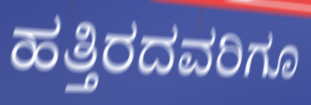
ಹತ್ತಿರದವರಿಗೂ